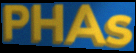
PHAs